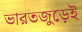
ভারতজুড়েই